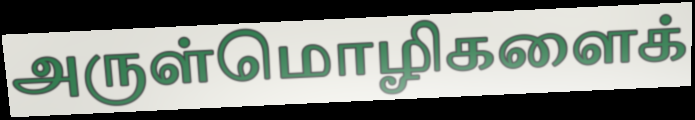
அருள்மொழிகளைக்